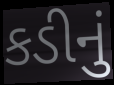
કડીનું